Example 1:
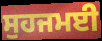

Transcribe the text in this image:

ਸੁਹਜਮਈ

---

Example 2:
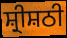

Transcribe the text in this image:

ਸ਼੍ਰੀਸ਼ਠੀ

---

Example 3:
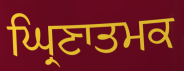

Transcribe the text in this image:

ਘ੍ਰਿਣਾਤਮਕ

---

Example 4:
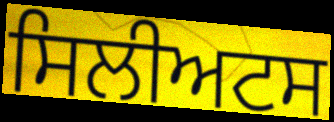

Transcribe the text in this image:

ਸਿਲੀਅਟਸ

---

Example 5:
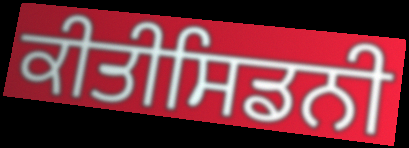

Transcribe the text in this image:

ਕੀਤੀਸਿਡਨੀ